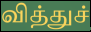
வித்துச்